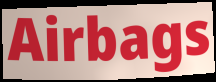
Airbags